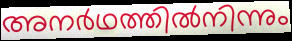
അനർഥത്തിൽനിന്നും